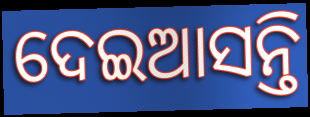
ଦେଇଆସନ୍ତି